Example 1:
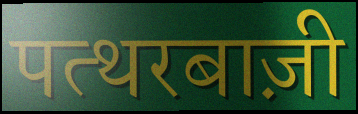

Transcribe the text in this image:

पत्थरबाज़ी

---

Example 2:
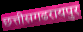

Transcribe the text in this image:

छत्तीसगढरायपुर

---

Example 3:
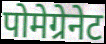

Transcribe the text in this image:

पोमेग्रेनेट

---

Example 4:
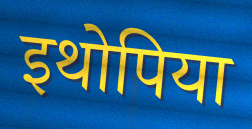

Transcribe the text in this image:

इथोपिया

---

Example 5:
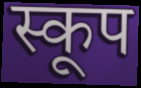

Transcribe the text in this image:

स्कूप